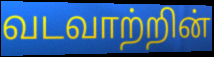
வடவாற்றின்